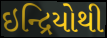
ઇન્દ્રિયોથી